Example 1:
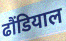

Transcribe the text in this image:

ढौंडियाल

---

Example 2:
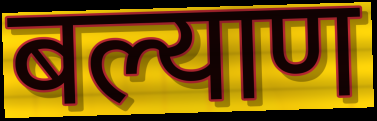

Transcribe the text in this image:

बल्याण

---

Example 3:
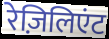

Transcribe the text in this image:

रेज़िलिएंट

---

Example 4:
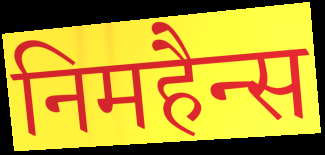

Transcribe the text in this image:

निमहैन्स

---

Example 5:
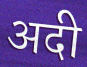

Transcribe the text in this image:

अदी